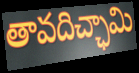
తావదిచ్ఛామి